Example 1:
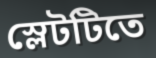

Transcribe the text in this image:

স্লেটটিতে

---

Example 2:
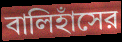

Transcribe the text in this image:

বালিহাঁসের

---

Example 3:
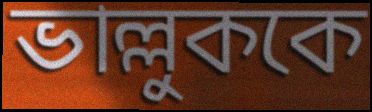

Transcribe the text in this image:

ভাল্লুককে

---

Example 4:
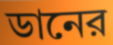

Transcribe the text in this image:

ডানের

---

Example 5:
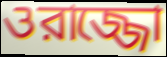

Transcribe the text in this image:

ওরাজ্জো